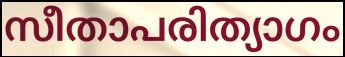
സീതാപരിത്യാഗം